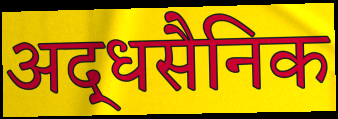
अद्धसैनिक